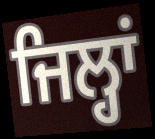
ਜਿਲ੍ਹਾਂ